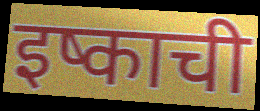
इष्काची